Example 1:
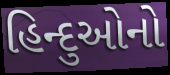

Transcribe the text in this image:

હિન્દુઓનો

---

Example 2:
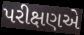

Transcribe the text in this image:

પરીક્ષણએ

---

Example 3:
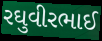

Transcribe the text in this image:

રઘુવીરભાઈ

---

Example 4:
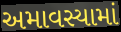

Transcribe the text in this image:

અમાવસ્યામાં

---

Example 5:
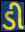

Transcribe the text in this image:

ડી